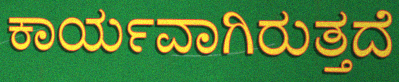
ಕಾರ್ಯವಾಗಿರುತ್ತದೆ